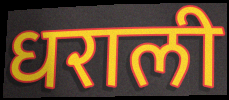
धराली